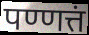
पण्णत्तं